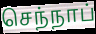
செந்நாப்